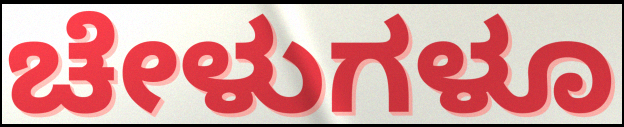
ಚೇಳುಗಳೂ